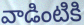
వాడింటికి